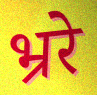
भ्ररे